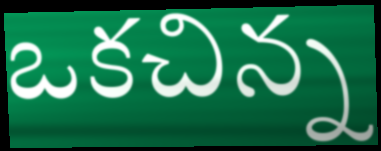
ఒకచిన్న